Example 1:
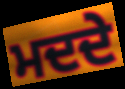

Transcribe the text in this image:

ਮਦਦੇ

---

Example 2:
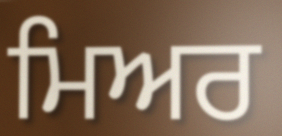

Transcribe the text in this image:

ਮਿਅਰ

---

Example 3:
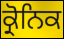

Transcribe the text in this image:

ਕ੍ਰੋਨਿਕ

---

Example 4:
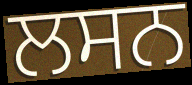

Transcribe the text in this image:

ਲਸਨ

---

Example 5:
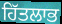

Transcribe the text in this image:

ਹਿੱਤਲਾਭ